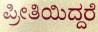
ಪ್ರೀತಿಯಿದ್ದರೆ